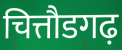
चित्तौडगढ़